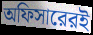
অফিসারেরই